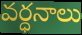
వర్ధనాలు